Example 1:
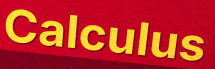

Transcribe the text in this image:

Calculus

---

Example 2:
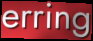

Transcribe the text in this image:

erring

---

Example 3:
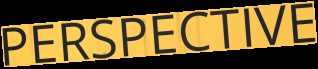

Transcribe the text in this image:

PERSPECTIVE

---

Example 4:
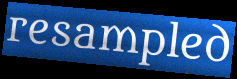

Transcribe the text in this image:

resampled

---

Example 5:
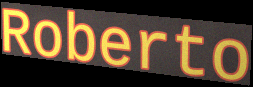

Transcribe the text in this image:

Roberto